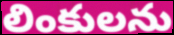
లింకులను